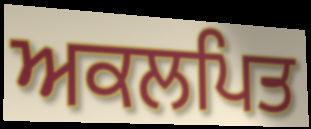
ਅਕਲਪਿਤ